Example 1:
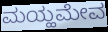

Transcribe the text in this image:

ಮಯ್ಹಮೇವ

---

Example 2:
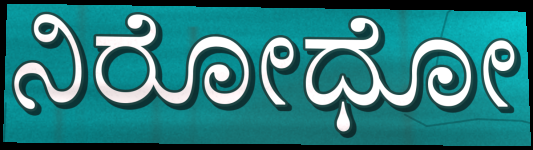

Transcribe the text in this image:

ನಿರೋಧೋ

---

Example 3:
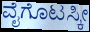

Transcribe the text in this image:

ವೈಗೊಟಸ್ಕೀ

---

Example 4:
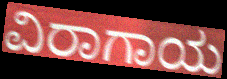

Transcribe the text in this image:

ವಿರಾಗಾಯ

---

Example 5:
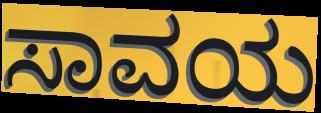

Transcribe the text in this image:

ಸಾವಯ